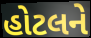
હોટલને